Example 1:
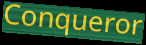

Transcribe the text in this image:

Conqueror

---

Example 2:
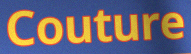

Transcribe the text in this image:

Couture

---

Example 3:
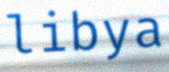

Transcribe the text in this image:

libya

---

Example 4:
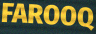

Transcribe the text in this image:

FAROOQ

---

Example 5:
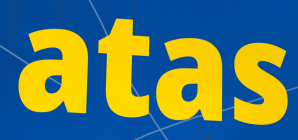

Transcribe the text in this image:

atas